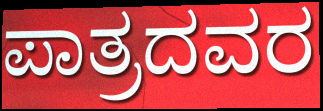
ಪಾತ್ರದವರ